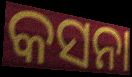
କସନା